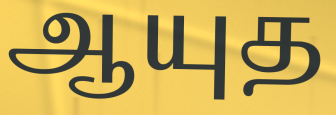
ஆயுத